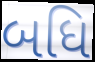
બધિ